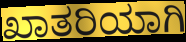
ಖಾತರಿಯಾಗಿ